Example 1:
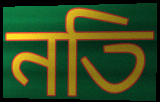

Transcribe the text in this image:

নতি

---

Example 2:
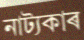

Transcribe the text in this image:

নাট্যকাৰ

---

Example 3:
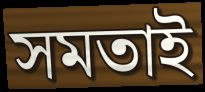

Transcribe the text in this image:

সমতাই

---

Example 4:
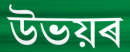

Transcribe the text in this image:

উভয়ৰ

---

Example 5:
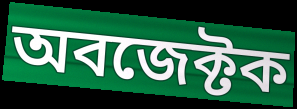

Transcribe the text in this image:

অবজেক্টক